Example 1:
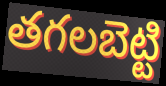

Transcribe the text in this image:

తగలబెట్టి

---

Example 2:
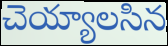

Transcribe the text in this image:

చెయ్యాలసిన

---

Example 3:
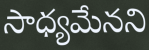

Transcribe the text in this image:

సాధ్యమేనని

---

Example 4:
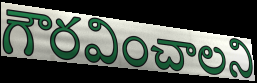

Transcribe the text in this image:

గౌరవించాలని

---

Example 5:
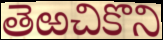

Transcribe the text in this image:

తెఱచికొని